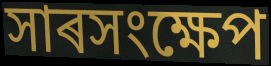
সাৰসংক্ষেপ